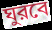
ঘুরবে